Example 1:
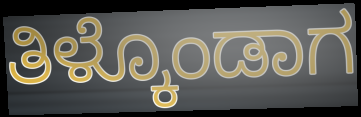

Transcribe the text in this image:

ತಿಳ್ಕೊಂಡಾಗ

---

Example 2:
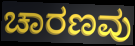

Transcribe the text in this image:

ಚಾರಣವು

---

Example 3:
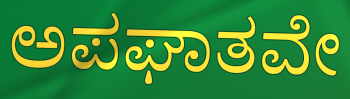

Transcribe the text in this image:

ಅಪಘಾತವೇ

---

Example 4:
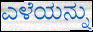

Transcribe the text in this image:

ಎಳೆಯನ್ನು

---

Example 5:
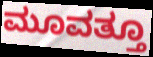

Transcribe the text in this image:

ಮೂವತ್ತೂ